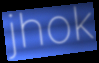
jhok